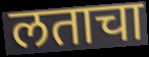
लताचा